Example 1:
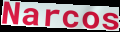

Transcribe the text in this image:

Narcos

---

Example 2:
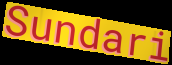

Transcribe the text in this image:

Sundari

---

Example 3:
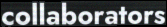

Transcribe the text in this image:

collaborators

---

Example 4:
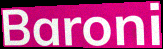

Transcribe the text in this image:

Baroni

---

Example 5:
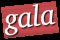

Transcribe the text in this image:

gala